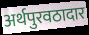
अर्थपुरवठादार